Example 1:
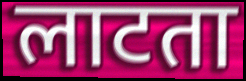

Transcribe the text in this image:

लाटता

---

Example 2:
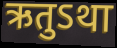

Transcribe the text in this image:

ऋतुऽथा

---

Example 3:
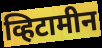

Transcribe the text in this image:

व्हिटामीन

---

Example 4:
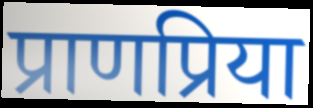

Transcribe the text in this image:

प्राणप्रिया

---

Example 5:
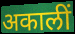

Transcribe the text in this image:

अकालीं